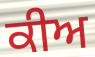
ਕੀਅ